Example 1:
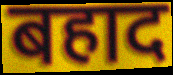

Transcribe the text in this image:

बहाद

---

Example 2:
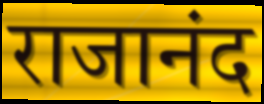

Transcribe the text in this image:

राजानंद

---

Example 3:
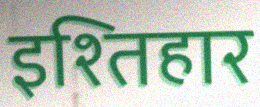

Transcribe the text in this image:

इश्तिहार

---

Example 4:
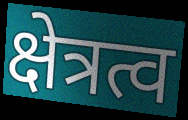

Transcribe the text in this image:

क्षेत्रत्व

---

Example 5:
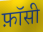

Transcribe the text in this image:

फ़ॉसी